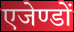
एजेण्डों